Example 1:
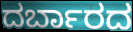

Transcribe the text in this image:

ದರ್ಬಾರದ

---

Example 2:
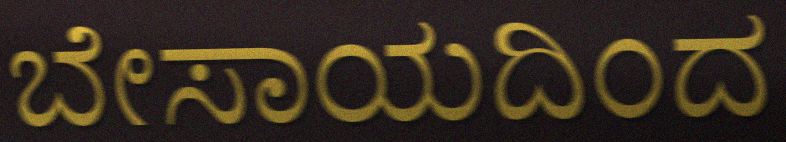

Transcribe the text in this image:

ಬೇಸಾಯದಿಂದ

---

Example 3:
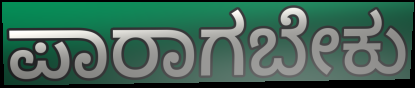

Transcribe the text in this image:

ಪಾರಾಗಬೇಕು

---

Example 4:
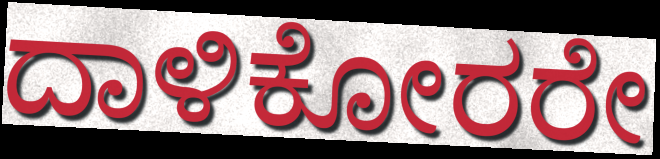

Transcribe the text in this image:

ದಾಳಿಕೋರರೇ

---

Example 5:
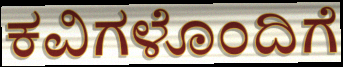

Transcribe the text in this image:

ಕವಿಗಳೊಂದಿಗೆ